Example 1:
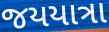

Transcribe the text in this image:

જયયાત્રા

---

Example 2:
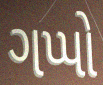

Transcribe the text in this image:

ગપ્પો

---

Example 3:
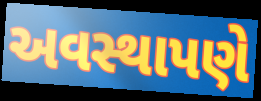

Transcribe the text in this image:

અવસ્થાપણે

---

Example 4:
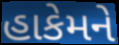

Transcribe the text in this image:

હાકેમને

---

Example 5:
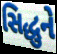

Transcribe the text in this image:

સિદ્ધુને